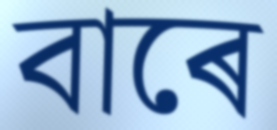
বাৰে